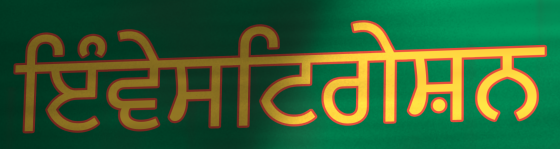
ਇੰਵੇਸਟਿਗੇਸ਼ਨ